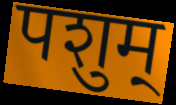
पशुम्